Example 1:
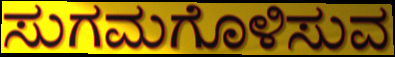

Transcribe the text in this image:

ಸುಗಮಗೊಳಿಸುವ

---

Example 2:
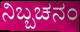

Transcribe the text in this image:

ನಿಬ್ಬಚನಂ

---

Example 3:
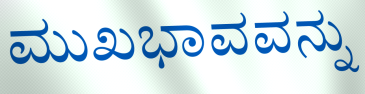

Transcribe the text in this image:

ಮುಖಭಾವವನ್ನು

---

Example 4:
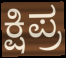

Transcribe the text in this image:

ಕ್ಷಿಪ್ರ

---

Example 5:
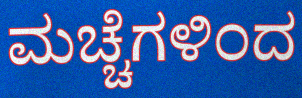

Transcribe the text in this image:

ಮಚ್ಚೆಗಳಿಂದ